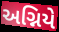
અગ્નિયે